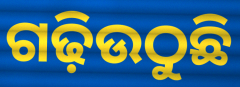
ଗଢ଼ିଉଠୁଛି